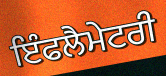
ਇੰਫਲੈਮੇਟਰੀ